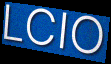
LCIO